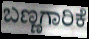
ಬಣ್ಣಗಾರಿಕೆ